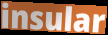
insular